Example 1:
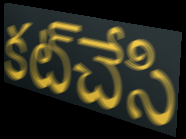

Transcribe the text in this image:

కట్‌చేసి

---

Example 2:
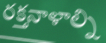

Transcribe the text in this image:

రక్తనాళాల్ని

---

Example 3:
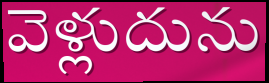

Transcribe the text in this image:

వెళ్లుదును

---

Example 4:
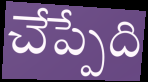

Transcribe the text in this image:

చేప్పేది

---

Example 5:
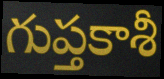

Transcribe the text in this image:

గుప్తకాశీ